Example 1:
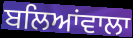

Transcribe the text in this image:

ਬਲਿਆਂਵਾਲਾ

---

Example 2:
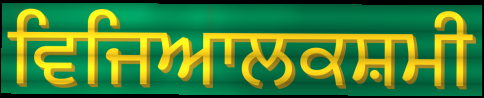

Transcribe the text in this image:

ਵਿਜਿਆਲਕਸ਼ਮੀ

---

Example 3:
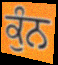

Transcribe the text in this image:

ਕੁੰਨ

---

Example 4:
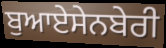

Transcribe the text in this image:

ਬੁਆਏਸੇਨਬੇਰੀ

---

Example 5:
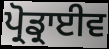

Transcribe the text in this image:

ਪ੍ਰੋਡ੍ਰਾਈਵ